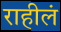
राहीलं